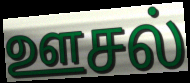
ஊசல்